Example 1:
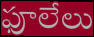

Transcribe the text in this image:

ఫూలేలు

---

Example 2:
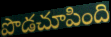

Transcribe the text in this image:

పొడచూపింది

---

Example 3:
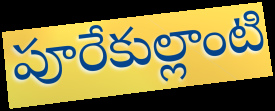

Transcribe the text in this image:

పూరేకుల్లాంటి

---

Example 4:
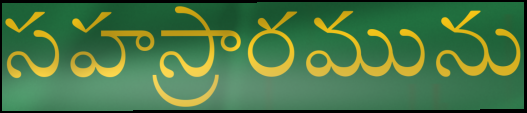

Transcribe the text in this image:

సహస్రారమును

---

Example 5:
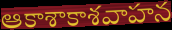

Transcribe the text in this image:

ఆకాశాకాశవాహన